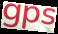
gps